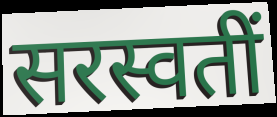
सरस्वतीं